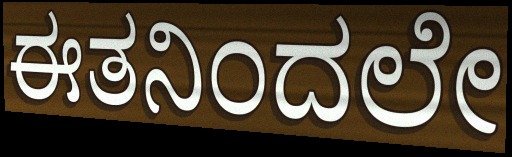
ಈತನಿಂದಲೇ